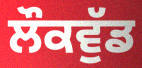
ਲੌਕਵੁੱਡ